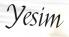
Yesim